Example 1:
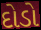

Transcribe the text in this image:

દોડો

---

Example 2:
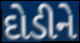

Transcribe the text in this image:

દોડીને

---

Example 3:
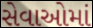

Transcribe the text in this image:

સેવાઓમાં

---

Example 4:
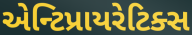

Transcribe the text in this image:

એન્ટિપ્રાયરેટિક્સ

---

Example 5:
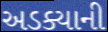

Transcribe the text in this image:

અડક્યાની